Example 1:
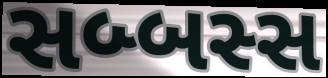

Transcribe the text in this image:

સબ્બસ્સ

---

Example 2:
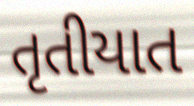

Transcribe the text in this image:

તૃતીયાત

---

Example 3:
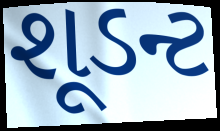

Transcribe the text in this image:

શૂડન્ટ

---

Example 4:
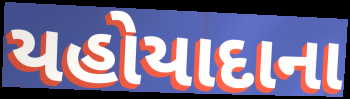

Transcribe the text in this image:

યહોયાદાના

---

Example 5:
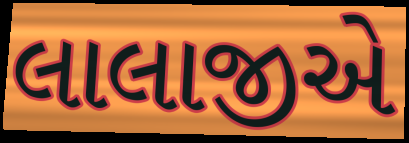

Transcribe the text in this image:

લાલાજીએ